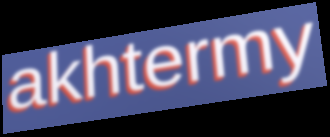
akhtermy